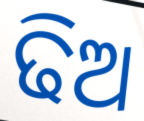
ଢିଅ